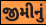
જીમીનું